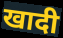
खादी